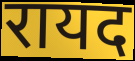
रायद